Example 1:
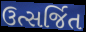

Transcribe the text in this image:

ઉત્સર્જિત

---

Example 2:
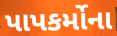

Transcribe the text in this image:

પાપકર્મોના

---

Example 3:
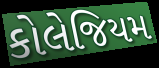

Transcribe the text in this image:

કોલેજિયમ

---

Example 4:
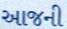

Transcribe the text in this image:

આજની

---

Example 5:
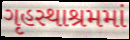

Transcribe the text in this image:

ગૃહસ્થાશ્રમમાં